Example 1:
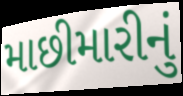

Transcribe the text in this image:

માછીમારીનું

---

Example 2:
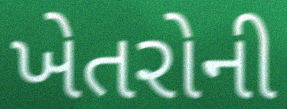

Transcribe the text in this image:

ખેતરોની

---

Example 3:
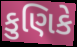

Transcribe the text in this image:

કુણિકે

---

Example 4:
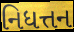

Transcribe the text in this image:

નિધત્તન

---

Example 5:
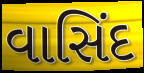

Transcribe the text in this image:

વાસિંદ